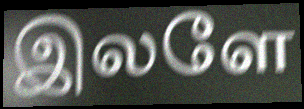
இலளே